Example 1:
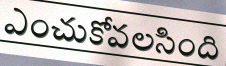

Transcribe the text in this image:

ఎంచుకోవలసింది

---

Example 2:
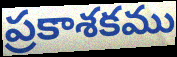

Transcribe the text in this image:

ప్రకాశకము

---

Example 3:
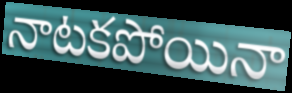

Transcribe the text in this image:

నాటకపోయినా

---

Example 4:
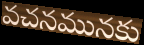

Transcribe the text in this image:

వచనమునకు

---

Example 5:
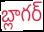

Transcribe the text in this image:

బ్లాగర్